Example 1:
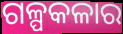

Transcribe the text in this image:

ଗଳ୍ପକଳାର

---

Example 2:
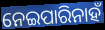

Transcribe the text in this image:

ନେଇପାରିନାହଁ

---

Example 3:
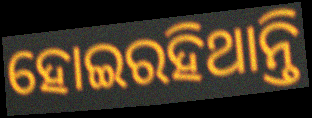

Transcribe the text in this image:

ହୋଇରହିଥାନ୍ତି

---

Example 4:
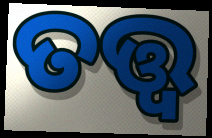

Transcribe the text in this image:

ତତ୍ତ୍ବ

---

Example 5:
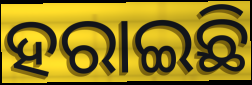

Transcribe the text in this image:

ହରାଇଛି